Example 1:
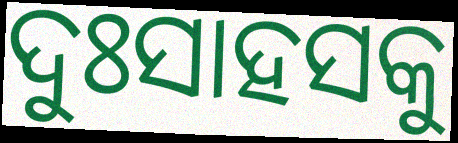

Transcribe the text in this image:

ଦୁଃସାହସକୁ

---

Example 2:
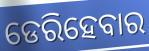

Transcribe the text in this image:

ଡେରିହେବାର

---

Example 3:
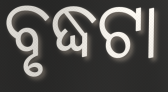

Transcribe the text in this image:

ବୃଦ୍ଧଟା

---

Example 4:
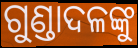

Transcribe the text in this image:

ଗୁଣ୍ଡାଦଳଙ୍କୁ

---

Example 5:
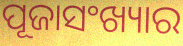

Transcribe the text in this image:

ପୂଜାସଂଖ୍ୟାର